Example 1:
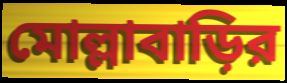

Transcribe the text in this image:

মোল্লাবাড়ির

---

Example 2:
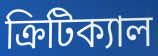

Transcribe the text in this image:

ক্রিটিক্যাল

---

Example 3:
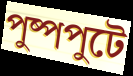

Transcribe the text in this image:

পুষ্পপুটে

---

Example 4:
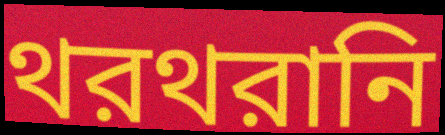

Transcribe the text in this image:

থরথরানি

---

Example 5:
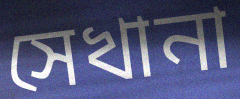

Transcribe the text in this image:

সেখানা